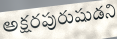
అక్షరపురుషుడని